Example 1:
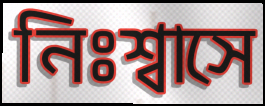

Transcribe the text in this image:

নিঃশ্বাসে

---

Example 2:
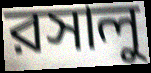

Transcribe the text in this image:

রসালু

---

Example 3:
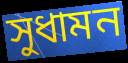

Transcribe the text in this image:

সুধামন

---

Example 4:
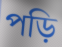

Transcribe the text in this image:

পড়ি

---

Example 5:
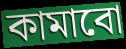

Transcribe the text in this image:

কামাবো